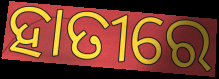
ହାତୀରେ